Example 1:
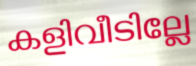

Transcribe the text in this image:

കളിവീടില്ലേ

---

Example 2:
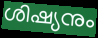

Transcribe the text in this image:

ശിഷ്യനും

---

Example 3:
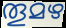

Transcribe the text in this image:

തൂമഴ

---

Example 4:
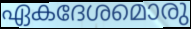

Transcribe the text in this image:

ഏകദേശമൊരു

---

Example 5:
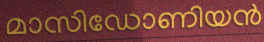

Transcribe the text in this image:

മാസിഡോണിയൻ